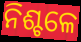
ନିଶ୍ଚଳେ